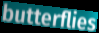
butterflies